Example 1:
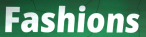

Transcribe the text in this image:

Fashions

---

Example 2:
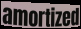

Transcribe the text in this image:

amortized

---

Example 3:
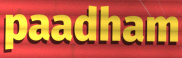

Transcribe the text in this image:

paadham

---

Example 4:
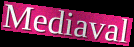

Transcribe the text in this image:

Mediaval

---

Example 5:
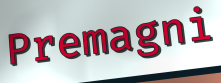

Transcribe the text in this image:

Premagni